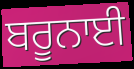
ਬਰੂਨਾਈ